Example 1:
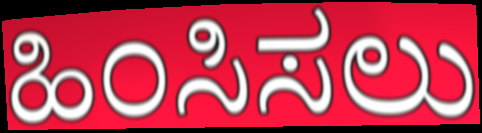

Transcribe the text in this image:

ಹಿಂಸಿಸಲು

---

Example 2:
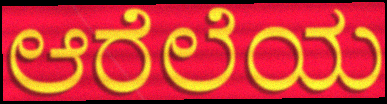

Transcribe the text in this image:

ಆರೆಲೆಯ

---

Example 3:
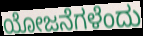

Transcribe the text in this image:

ಯೋಜನೆಗಳೆಂದು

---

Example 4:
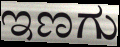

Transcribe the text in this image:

ಇಣಗು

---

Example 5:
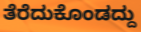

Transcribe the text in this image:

ತೆರೆದುಕೊಂಡದ್ದು